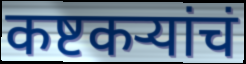
कष्टकऱ्यांचं